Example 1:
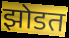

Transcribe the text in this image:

झोडत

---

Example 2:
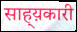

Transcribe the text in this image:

साह्य़कारी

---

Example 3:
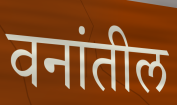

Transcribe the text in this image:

वनांतील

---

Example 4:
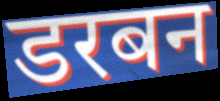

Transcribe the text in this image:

डरबन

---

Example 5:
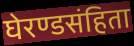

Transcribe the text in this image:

घेरण्डसंहिता